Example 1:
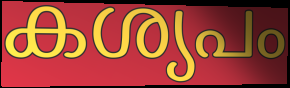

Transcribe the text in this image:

കശ്യപം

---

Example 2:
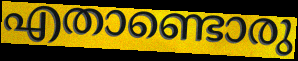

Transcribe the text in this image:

എതാണ്ടൊരു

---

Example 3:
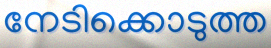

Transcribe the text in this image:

നേടിക്കൊടുത്ത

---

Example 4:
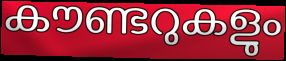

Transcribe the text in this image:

കൗണ്ടറുകളും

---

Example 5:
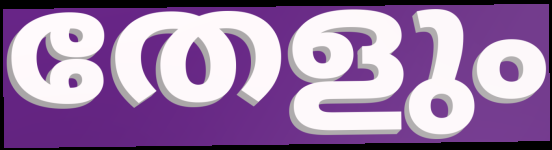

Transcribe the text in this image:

തേളും